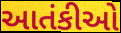
આતંકીઓ